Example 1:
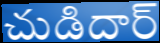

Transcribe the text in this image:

చుడిదార్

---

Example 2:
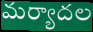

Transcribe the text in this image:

మర్యాదల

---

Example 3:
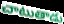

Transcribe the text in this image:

చాటుతాడు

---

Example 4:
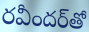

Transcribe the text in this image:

రవీందర్‌తో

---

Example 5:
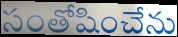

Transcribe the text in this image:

సంతోషించేను